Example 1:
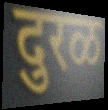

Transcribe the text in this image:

दुरळ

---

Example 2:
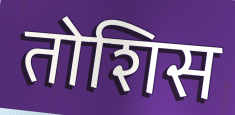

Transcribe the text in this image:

तोशिस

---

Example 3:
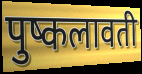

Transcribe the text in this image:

पुष्कलावती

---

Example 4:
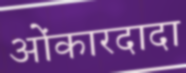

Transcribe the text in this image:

ओंकारदादा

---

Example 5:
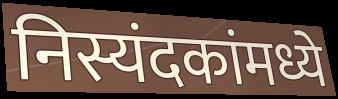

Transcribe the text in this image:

निस्यंदकांमध्ये